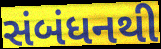
સંબંધનથી